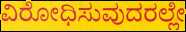
ವಿರೋಧಿಸುವುದರಲ್ಲೇ